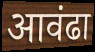
आवंढा